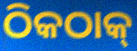
ଠିକଠାକ୍